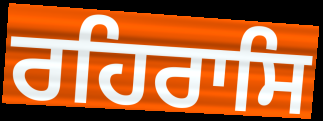
ਰਹਿਰਾਸਿ